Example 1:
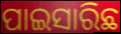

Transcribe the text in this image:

ପାଇସାରିଛ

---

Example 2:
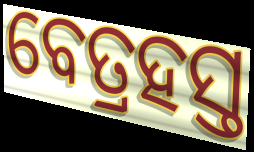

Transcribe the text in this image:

ବେତ୍ରହସ୍ତ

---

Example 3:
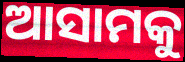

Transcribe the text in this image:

ଆସାମକୁ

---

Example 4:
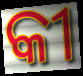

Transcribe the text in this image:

କୀ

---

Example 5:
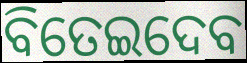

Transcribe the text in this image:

ବିତେଇଦେବ